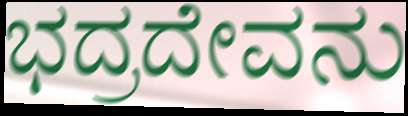
ಭದ್ರದೇವನು